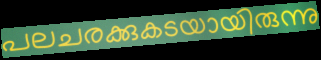
പലചരക്കുകടയായിരുന്നു